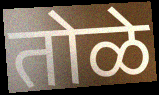
तोळे